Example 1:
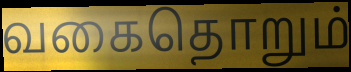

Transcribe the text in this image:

வகைதொறும்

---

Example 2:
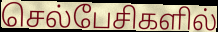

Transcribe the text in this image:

செல்பேசிகளில்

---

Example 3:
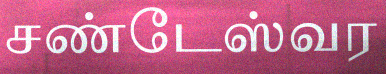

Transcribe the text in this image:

சண்டேஸ்வர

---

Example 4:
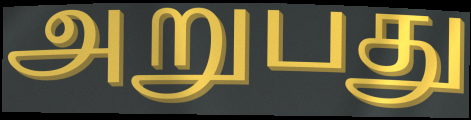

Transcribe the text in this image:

அறுபது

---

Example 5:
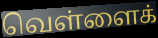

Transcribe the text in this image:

வெள்ளைக்